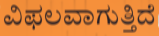
ವಿಫಲವಾಗುತ್ತಿದೆ